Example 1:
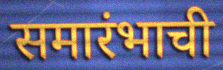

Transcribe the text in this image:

समारंभाची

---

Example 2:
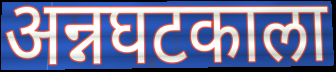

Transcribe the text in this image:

अन्नघटकाला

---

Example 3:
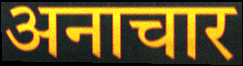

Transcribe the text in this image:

अनाचार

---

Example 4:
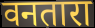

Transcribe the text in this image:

वनतारा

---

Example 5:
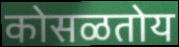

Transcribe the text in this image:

कोसळतोय